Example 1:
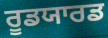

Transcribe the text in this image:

ਰੂਡਯਾਰਡ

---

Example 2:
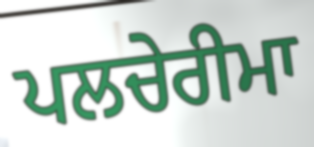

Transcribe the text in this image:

ਪਲਚੇਰੀਮਾ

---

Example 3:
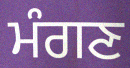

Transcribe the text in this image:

ਮੰਗਣ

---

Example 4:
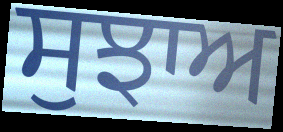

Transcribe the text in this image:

ਸੁਝਾਅ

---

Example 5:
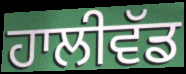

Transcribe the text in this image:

ਹਾਲੀਵੱਡ